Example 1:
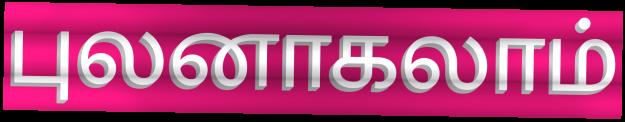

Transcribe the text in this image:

புலனாகலாம்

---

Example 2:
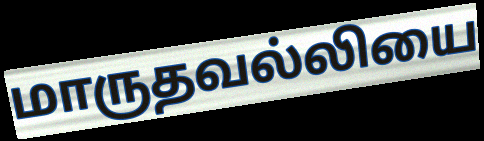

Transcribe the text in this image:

மாருதவல்லியை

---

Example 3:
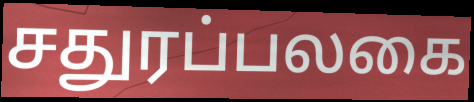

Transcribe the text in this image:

சதுரப்பலகை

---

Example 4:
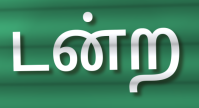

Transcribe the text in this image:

டன்ற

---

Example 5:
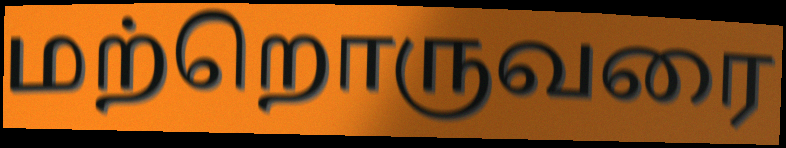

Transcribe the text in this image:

மற்றொருவரை